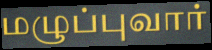
மழுப்புவார்